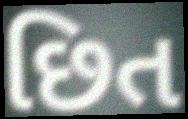
છિત